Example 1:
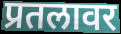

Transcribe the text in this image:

प्रतलावर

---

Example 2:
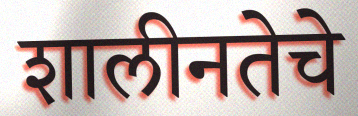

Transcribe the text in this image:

शालीनतेचे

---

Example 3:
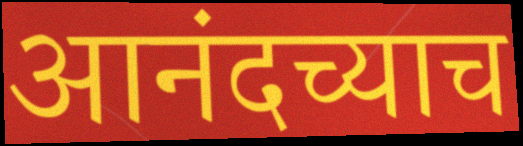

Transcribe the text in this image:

आनंदच्याच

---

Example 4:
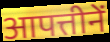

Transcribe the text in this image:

आपत्तीनें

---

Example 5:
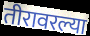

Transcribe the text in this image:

तीरावरल्या